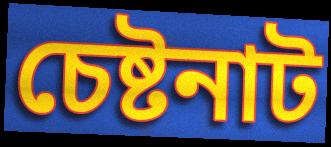
চেষ্টনাট